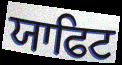
ਯਾਫਿਟ